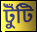
টুঁটি